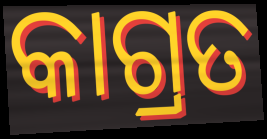
କାଗ୍ରତ